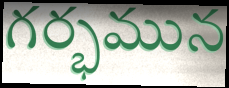
గర్భమున